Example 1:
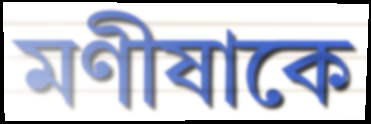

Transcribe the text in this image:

মণীষাকে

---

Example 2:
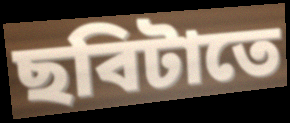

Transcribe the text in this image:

ছবিটাতে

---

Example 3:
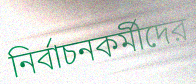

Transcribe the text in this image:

নির্বাচনকর্মীদের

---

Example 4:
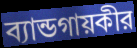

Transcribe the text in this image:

ব্যান্ডগায়কীর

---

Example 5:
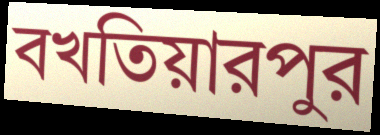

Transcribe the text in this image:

বখতিয়ারপুর